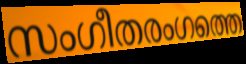
സംഗീതരംഗത്തെ